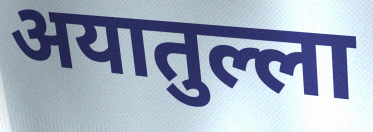
अयातुल्ला